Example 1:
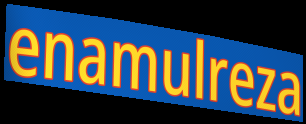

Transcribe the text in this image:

enamulreza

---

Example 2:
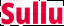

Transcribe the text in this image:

Sullu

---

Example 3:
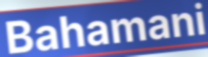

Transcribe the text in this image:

Bahamani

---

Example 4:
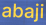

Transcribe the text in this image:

abaji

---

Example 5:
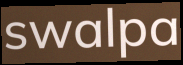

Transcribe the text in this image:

swalpa